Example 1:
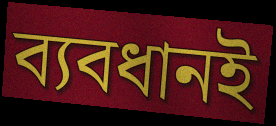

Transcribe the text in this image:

ব্যবধানই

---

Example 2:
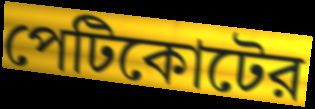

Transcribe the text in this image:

পেটিকোটের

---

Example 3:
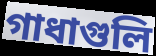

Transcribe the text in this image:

গাধাগুলি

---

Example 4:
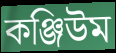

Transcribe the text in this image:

কঞ্জিউম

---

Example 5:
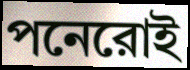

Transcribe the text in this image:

পনেরোই